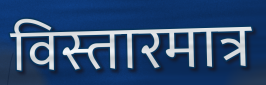
विस्तारमात्र